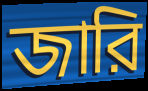
জারি